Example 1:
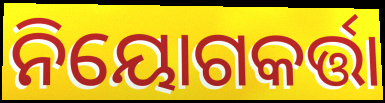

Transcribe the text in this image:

ନିୟୋଗକର୍ତ୍ତା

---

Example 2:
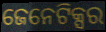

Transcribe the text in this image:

ଜେନେଟିକ୍ସର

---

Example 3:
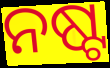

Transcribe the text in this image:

ନଷ୍ଟ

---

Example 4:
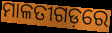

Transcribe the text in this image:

ମାଳତୀଗଡ଼ରେ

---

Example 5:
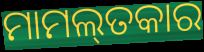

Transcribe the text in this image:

ମାମଲ୍‌ତକାର